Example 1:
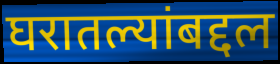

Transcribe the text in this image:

घरातल्यांबद्दल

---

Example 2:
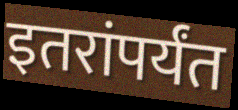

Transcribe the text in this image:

इतरांपर्यंत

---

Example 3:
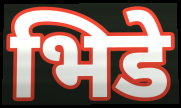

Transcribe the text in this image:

भिडे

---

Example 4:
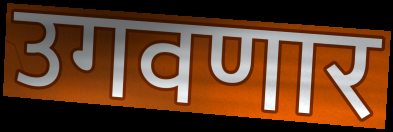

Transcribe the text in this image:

उगवणार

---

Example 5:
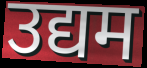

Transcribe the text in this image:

उद्यम